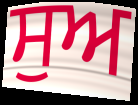
ਸੁਅ